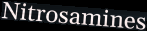
Nitrosamines